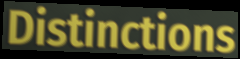
Distinctions